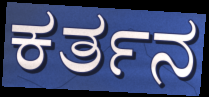
ಕರ್ತನ